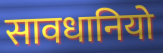
सावधानियो